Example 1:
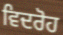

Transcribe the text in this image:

ਵਿਦਰੋਹ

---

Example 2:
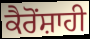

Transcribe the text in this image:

ਕੈਰੋਂਸ਼ਾਹੀ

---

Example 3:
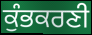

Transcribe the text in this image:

ਕੁੰਭਕਰਣੀ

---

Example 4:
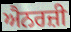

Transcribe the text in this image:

ਐਨਰਜ਼ੀ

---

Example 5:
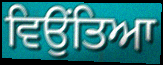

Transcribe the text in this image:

ਵਿਉਂਤਿਆ